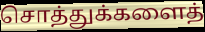
சொத்துக்களைத்